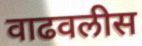
वाढवलीस